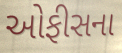
ઓફીસના